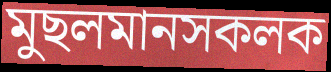
মুছলমানসকলক